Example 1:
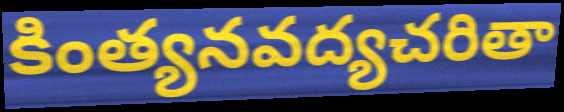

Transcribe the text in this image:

కింత్యనవద్యచరితా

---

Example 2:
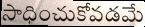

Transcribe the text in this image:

సాధించుకోవడమే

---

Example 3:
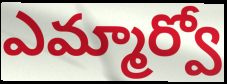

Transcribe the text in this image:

ఎమ్మార్వో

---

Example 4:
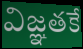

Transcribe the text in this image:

విజ్ఞతకే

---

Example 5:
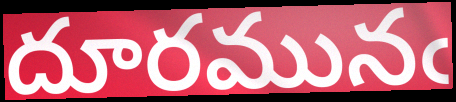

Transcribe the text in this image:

దూరమునఁ